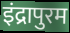
इंद्रापुरम